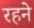
रहने